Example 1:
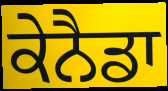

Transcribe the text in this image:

ਕੇਨੈਡਾ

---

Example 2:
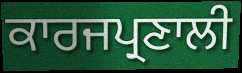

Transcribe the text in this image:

ਕਾਰਜਪ੍ਰਣਾਲੀ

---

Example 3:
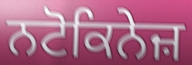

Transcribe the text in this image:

ਨਟੋਕਿਨੇਜ਼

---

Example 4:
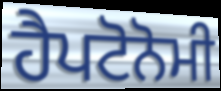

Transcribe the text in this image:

ਹੈਪਟੋਨੋਮੀ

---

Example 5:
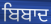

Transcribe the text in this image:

ਬਿਬਾਦ